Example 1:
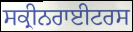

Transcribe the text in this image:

ਸਕ੍ਰੀਨਰਾਈਟਰਸ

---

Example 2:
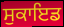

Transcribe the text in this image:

ਸੁਕਾਇਡ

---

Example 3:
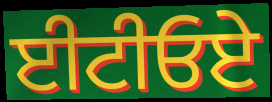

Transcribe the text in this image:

ਈਟੀਓਏ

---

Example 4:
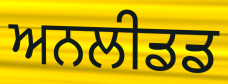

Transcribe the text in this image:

ਅਨਲੀਡਡ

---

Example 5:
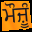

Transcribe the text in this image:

ਮੌਜ਼ੂੰ